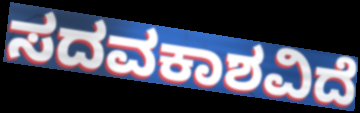
ಸದವಕಾಶವಿದೆ